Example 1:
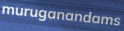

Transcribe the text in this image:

muruganandams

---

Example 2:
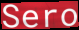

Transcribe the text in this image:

Sero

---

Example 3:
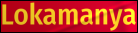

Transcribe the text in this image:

Lokamanya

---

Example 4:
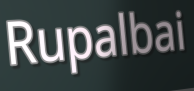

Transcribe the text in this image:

Rupalbai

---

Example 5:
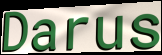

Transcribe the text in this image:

Darus